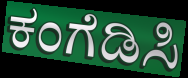
ಕಂಗೆಡಿಸಿ